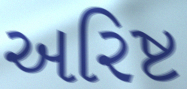
અરિષ્ટ